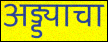
अड्ड्याचा